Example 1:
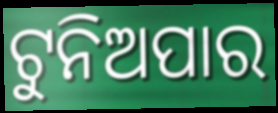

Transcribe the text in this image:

ଟୁନିଅପାର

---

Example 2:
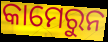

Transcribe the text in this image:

କାମେରୁନ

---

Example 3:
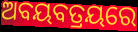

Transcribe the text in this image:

ଅବୟବତ୍ରୟରେ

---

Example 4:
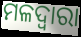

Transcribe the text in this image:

ମଳଦ୍ଵାରା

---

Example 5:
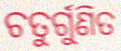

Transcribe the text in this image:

ଚତୁର୍ଗୁଣିତ